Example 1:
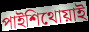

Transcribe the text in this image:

পাইশিথোয়াই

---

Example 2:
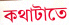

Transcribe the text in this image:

কথাটাতে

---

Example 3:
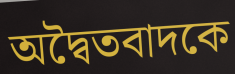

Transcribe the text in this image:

অদ্বৈতবাদকে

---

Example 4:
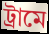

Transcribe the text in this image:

ট্রামে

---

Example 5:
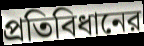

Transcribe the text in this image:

প্রতিবিধানের